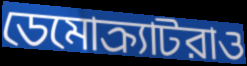
ডেমোক্র্যাটরাও